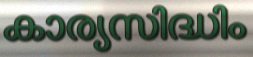
കാര്യസിദ്ധിം